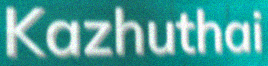
Kazhuthai